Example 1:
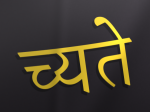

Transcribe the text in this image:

च्यते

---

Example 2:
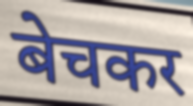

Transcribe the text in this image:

बेचकर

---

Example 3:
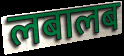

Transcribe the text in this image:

लबालब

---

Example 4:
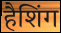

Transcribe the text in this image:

हैशिंग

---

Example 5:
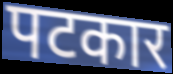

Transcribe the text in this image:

पटकार